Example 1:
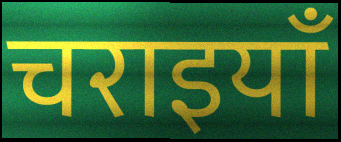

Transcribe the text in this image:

चराइयाँ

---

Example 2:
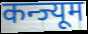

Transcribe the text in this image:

कन्ज्यूम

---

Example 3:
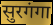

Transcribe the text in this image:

सुरगंगा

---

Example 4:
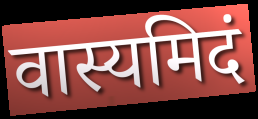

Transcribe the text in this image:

वास्यमिदं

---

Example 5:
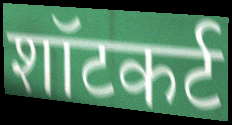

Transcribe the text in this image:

शॉटकर्ट